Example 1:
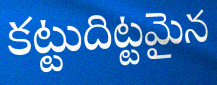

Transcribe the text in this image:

కట్టుదిట్టమైన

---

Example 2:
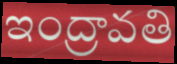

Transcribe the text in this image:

ఇంద్రావతి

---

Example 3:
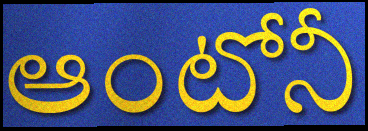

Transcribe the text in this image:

ఆంటోనీ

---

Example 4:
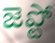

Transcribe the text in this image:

జెప్టో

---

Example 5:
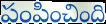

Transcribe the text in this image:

పంపించింది